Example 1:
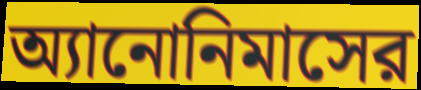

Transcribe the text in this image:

অ্যানোনিমাসের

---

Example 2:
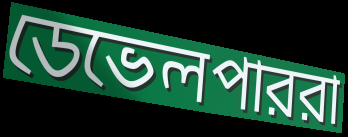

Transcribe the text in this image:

ডেভেলপাররা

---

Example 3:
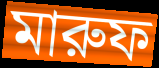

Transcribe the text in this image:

মারুফ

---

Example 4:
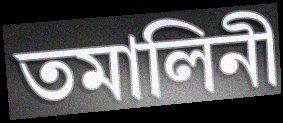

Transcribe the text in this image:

তমালিনী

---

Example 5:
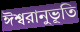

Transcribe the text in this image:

ঈশ্বরানুভূতি